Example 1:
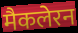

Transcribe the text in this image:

मैकलेरन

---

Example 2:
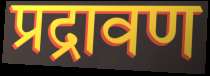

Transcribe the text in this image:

प्रद्रावण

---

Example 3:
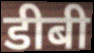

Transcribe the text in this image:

डीबी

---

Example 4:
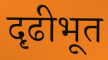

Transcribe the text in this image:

दृढीभूत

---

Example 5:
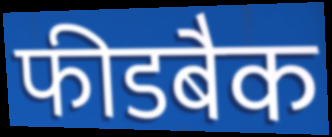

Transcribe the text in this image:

फीडबैक